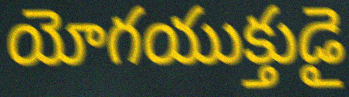
యోగయుక్తుడై